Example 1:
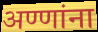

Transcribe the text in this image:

अण्णांना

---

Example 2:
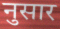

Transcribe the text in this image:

नुसार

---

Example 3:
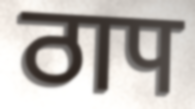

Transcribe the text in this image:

ठाप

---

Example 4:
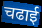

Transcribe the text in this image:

चढाई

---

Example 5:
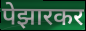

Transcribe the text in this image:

पेझारकर